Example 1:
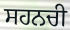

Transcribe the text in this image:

ਸਹਨਚੀ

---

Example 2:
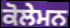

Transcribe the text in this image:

ਕੋਲੇਮਨ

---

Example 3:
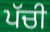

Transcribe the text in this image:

ਪੱਚੀ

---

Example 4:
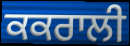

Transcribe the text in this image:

ਕਕਰਾਲੀ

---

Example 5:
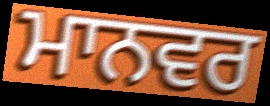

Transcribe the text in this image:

ਮਾਨਵਰ